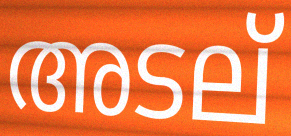
അടല്